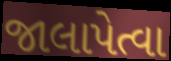
જાલાપેત્વા